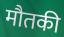
मौतकी